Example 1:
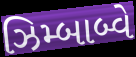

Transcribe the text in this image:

ઝિમ્બાબ્વે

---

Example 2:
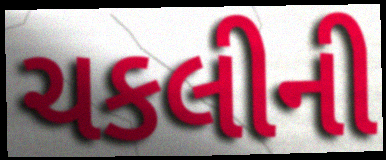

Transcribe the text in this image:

ચકલીની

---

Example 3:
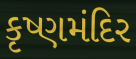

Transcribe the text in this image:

કૃષ્ણમંદિર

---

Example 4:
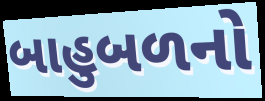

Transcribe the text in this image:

બાહુબળનો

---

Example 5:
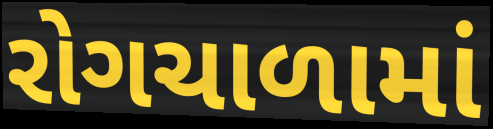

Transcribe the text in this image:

રોગચાળામાં